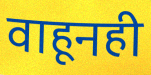
वाहूनही